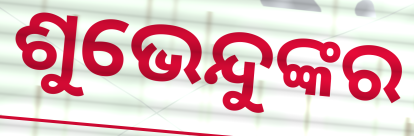
ଶୁଭେନ୍ଦୁଙ୍କର